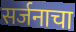
सर्जनाचा